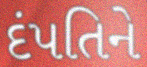
દંપતિને